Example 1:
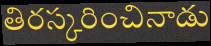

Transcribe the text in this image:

తిరస్కరించినాడు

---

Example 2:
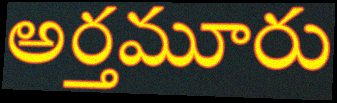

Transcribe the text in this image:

అర్తమూరు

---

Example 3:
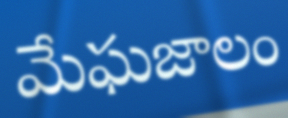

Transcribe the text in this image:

మేఘజాలం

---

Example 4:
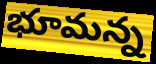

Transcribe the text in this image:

భూమన్న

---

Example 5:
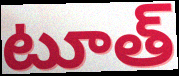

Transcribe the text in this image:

టూత్